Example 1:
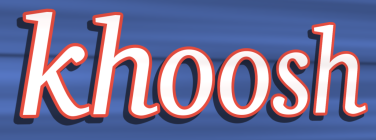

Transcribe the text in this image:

khoosh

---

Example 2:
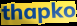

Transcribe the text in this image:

thapko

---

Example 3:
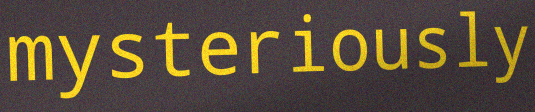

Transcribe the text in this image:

mysteriously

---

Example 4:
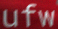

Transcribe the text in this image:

ufw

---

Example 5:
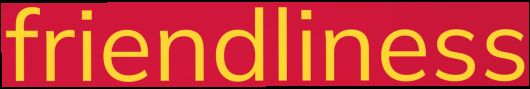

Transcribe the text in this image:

friendliness